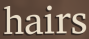
hairs